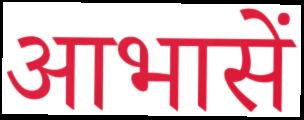
आभासें